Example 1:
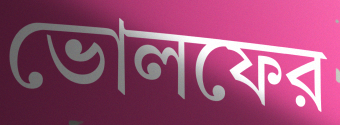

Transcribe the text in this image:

ভোলফের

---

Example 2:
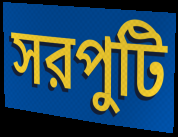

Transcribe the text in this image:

সরপুটি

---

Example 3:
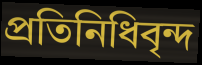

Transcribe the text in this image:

প্রতিনিধিবৃন্দ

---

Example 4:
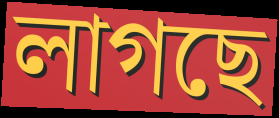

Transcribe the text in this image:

লাগছে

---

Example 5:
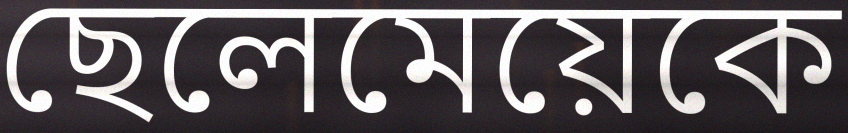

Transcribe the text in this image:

ছেলেমেয়েকে